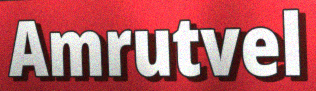
Amrutvel